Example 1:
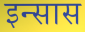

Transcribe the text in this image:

इन्सास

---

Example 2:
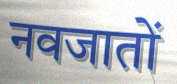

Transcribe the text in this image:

नवजातों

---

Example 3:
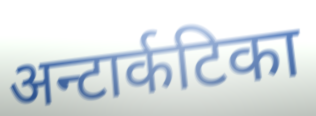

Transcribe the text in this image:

अन्टार्कटिका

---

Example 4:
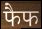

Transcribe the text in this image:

फैफ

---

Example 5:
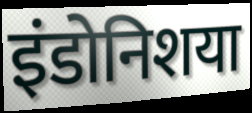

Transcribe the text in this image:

इंडोनिशया